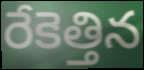
రేకెత్తిన